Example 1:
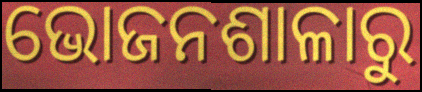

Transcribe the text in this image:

ଭୋଜନଶାଳାରୁ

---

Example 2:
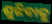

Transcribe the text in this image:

ଶୁଝିବାକୁ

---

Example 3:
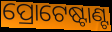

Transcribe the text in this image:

ପ୍ରୋଟେଷ୍ଟାଣ୍ଟ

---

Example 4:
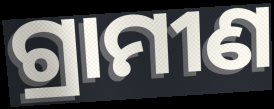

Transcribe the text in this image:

ଗ୍ରାମୀଣ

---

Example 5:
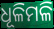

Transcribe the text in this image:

ଧୂଳିମଳି